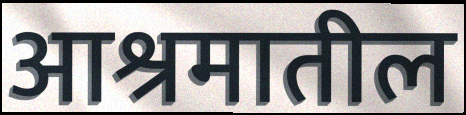
आश्रमातील